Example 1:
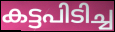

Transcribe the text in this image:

കട്ടപിടിച്ച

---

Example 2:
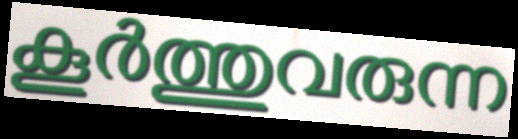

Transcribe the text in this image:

കൂർത്തുവരുന്ന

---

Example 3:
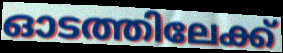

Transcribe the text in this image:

ഓടത്തിലേക്ക്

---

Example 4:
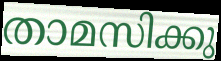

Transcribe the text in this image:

താമസിക്കു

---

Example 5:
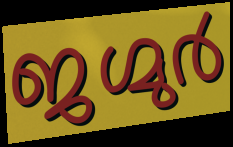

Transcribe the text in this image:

ജഗ്മുർ